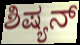
ಶಿಷ್ಯನ್